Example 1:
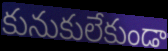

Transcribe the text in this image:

కునుకులేకుండా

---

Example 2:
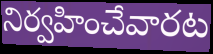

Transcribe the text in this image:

నిర్వహించేవారట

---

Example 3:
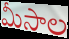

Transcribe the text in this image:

మీసాల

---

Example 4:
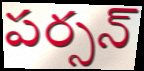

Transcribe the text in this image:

పర్సన్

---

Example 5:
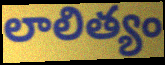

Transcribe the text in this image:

లాలిత్యం